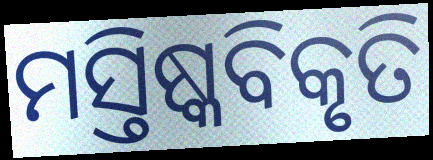
ମସ୍ତିଷ୍କବିକୃତି